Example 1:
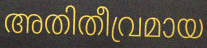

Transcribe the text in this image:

അതിതീവ്രമായ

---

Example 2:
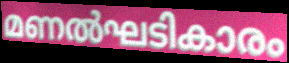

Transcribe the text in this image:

മണൽഘടികാരം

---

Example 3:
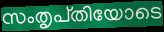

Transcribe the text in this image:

സംതൃപ്‌തിയോടെ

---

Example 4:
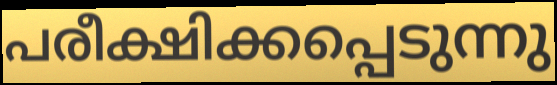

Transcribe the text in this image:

പരീക്ഷിക്കപ്പെടുന്നു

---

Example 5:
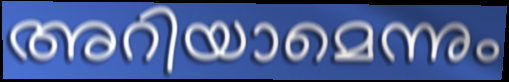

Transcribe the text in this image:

അറിയാമെന്നും